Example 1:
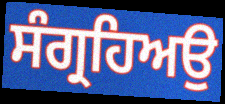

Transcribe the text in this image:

ਸੰਗ੍ਰਹਿਅਉ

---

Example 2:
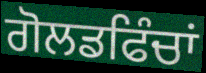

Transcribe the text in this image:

ਗੋਲਡਫਿੰਚਾਂ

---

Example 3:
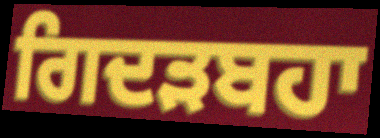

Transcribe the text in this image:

ਗਿਦੜਬਹਾ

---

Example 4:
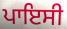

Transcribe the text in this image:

ਪਾਇਸੀ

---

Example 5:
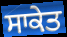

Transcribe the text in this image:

ਸਾਕੇਤ